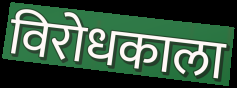
विरोधकाला